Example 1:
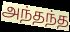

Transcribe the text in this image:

அந்தந்த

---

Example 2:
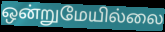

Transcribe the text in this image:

ஒன்றுமேயில்லை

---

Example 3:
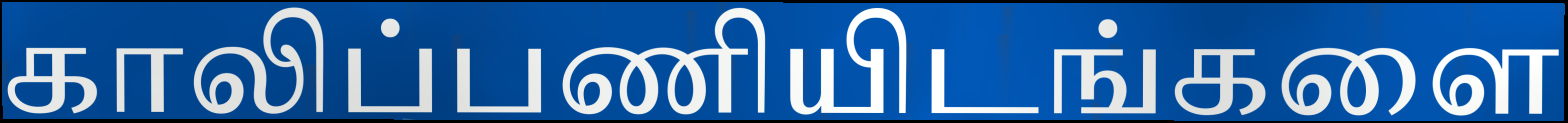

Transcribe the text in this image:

காலிப்பணியிடங்களை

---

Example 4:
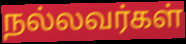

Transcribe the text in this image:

நல்லவர்கள்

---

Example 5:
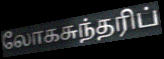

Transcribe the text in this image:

லோகசுந்தரிப்